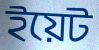
ইয়েট